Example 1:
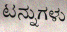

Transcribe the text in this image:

ಟನ್ನುಗಳು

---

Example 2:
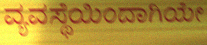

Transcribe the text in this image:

ವ್ಯವಸ್ಥೆಯಿಂದಾಗಿಯೇ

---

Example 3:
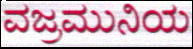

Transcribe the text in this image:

ವಜ್ರಮುನಿಯ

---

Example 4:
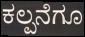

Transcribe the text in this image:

ಕಲ್ಪನೆಗೂ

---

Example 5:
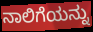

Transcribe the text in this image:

ನಾಲಿಗೆಯನ್ನು